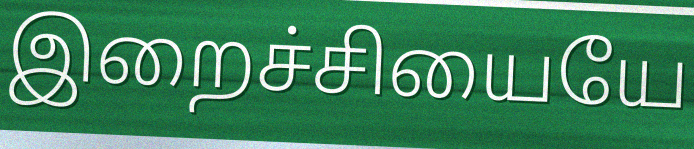
இறைச்சியையே